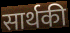
सार्थकी